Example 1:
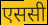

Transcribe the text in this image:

एससी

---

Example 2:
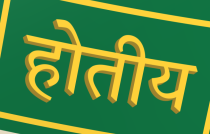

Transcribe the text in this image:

होतीय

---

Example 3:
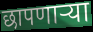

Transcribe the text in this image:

छापणाऱ्या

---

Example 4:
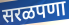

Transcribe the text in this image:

सरळपणा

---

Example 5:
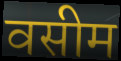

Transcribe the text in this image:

वसीम